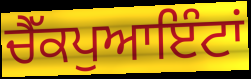
ਚੈੱਕਪੁਆਇੰਟਾਂ